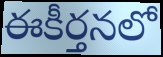
ఈకీర్తనలో